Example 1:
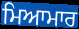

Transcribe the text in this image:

ਮਿਆਮਾਰ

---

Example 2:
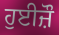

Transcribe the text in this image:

ਹੁਈਜ਼ੌ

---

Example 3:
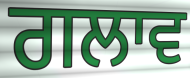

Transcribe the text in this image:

ਗਲਾਵ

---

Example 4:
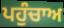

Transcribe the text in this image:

ਪਹੁੰਚਾਅ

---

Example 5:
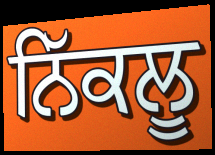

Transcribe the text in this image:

ਨਿੱਕਲੂ